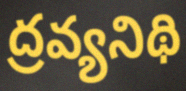
ద్రవ్యనిథి